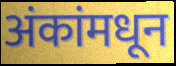
अंकांमधून